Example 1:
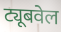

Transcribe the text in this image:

ट्यूबवेल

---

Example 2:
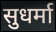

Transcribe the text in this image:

सुधर्मा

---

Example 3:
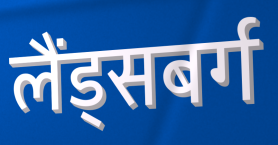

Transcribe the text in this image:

लैंड्सबर्ग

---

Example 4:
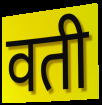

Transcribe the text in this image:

वती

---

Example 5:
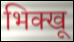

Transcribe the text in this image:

भिक्खू